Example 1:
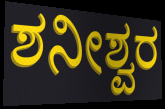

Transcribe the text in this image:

ಶನೀಶ್ವರ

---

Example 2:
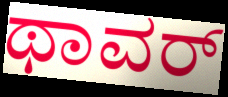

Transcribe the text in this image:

ಥಾವರ್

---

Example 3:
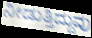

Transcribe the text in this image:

ನೀಡುತ್ತಿದ್ದುವು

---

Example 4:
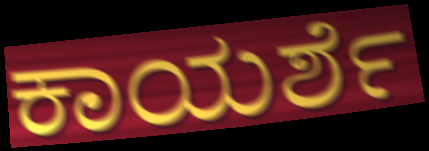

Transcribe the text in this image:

ಕಾಯರ್ಶೆ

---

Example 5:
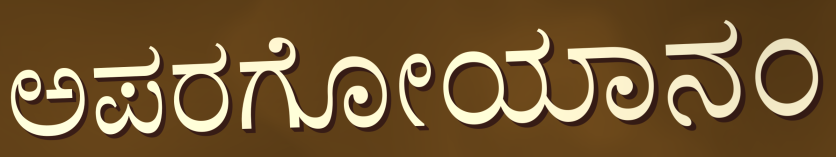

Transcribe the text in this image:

ಅಪರಗೋಯಾನಂ